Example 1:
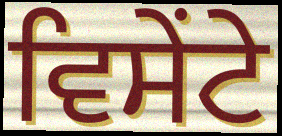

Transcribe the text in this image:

ਵਿਸੇਂਟੇ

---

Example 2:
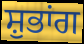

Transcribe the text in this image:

ਸ਼ੁਭਾਂਗ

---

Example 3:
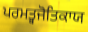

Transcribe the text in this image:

ਪਰਮਤ੍ਥਜੋਤਿਕਾਯ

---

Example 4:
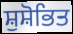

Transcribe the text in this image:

ਸ਼ੁਸ਼ੋਭਿਤ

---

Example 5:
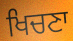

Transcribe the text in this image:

ਖਿਚਣਾ